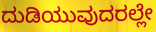
ದುಡಿಯುವುದರಲ್ಲೇ